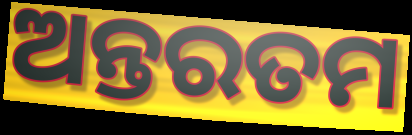
ଅନ୍ତରତମ